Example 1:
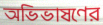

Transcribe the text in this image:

অভিভাষণের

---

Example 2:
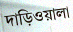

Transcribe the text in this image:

দাড়িওয়ালা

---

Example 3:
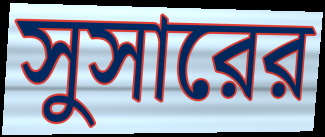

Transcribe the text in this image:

সুসারের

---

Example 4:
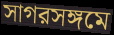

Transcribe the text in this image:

সাগরসঙ্গমে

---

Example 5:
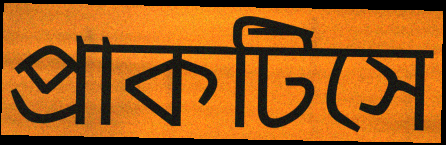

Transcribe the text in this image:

প্রাকটিসে